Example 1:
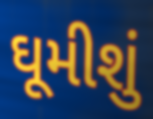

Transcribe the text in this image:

ઘૂમીશું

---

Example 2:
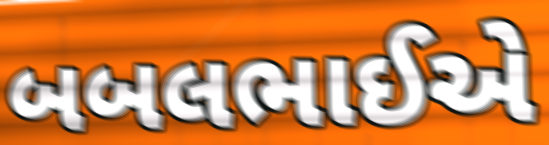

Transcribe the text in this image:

બબલભાઈએ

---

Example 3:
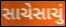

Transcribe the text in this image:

સાચેસાચું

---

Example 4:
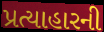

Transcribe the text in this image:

પ્રત્યાહારની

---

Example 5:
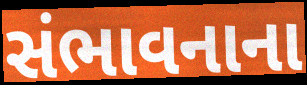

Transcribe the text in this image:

સંભાવનાના